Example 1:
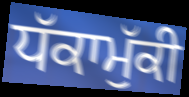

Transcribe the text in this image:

ਧੱਕਾਮੁੱਕੀ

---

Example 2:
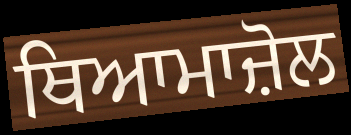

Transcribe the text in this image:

ਥਿਆਮਾਜ਼ੋਲ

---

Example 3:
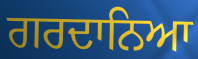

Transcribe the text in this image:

ਗਰਦਾਨਿਆ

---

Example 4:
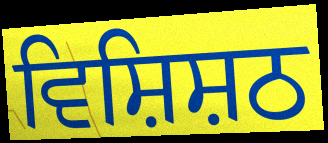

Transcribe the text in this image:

ਵਿਸ਼ਿਸ਼ਠ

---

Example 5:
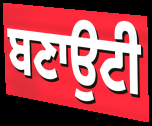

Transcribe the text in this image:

ਬਣਾਉਟੀ